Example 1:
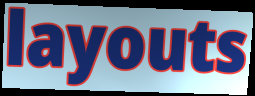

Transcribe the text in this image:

layouts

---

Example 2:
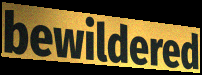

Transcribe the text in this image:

bewildered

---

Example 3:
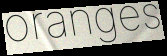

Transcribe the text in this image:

oranges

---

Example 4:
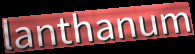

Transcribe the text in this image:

lanthanum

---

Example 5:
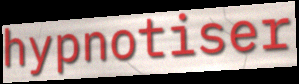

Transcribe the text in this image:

hypnotiser